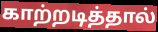
காற்றடித்தால்